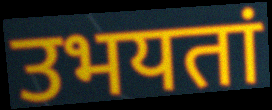
उभयतां